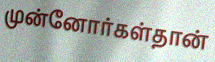
முன்னோர்கள்தான்